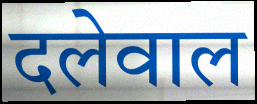
दलेवाल